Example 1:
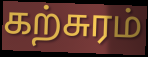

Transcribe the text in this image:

கற்சுரம்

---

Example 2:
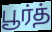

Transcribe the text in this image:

பூர்த்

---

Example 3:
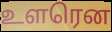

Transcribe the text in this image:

உளரென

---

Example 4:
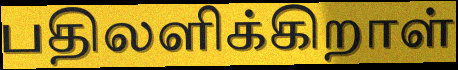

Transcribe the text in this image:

பதிலளிக்கிறாள்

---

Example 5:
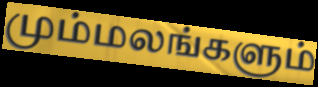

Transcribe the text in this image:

மும்மலங்களும்